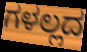
ಗಳಲ್ಲದ